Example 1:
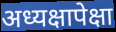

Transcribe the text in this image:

अध्यक्षापेक्षा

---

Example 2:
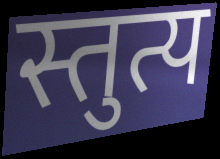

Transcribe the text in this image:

स्तुत्य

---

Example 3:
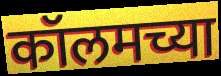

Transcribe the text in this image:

कॉलमच्या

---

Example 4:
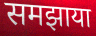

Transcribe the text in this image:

समझाया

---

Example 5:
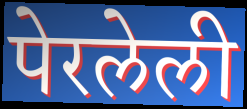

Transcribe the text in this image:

पेरलेली